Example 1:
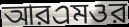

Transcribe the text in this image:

আরএমওর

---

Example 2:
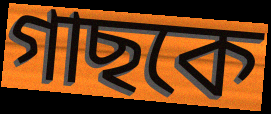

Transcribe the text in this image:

গাছকে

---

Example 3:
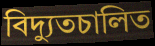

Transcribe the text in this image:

বিদ্যুতচালিত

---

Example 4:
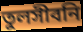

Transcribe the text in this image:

তুলসীবনি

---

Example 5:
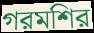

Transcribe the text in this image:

গরমশির